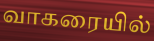
வாகரையில்